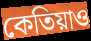
কেতিয়াও